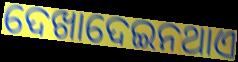
ଦେଖାଦେଇନଥାଏ